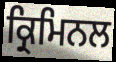
ਕ੍ਰਿਮਿਨਲ